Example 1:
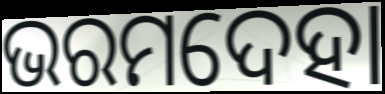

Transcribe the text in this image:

ଭରମଦେହା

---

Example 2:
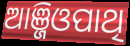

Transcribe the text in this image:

ଆଞ୍ଜିଓପାଥି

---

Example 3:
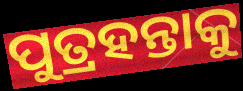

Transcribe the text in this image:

ପୁତ୍ରହନ୍ତାକୁ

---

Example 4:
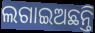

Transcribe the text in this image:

ଲଗାଇଅଛନ୍ତି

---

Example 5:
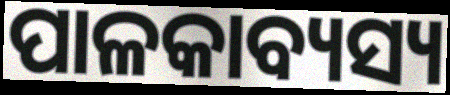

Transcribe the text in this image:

ପାଳକାବ୍ୟସ୍ୟ